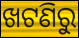
ଖଟଣିରୁ